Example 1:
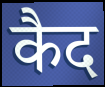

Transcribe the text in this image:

कैद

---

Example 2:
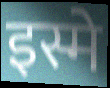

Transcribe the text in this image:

इस्मे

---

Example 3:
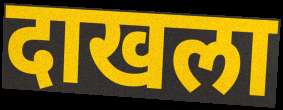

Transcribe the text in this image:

दाखला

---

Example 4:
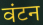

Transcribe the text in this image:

वंटन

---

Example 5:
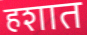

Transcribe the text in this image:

हशात